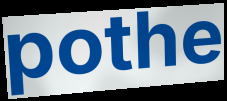
pothe